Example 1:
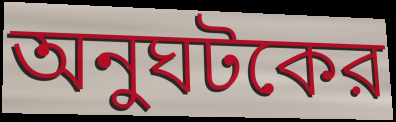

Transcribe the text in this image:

অনুঘটকের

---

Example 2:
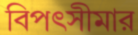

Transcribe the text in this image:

বিপৎসীমার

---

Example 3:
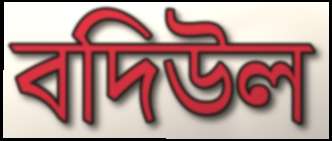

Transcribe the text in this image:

বদিউল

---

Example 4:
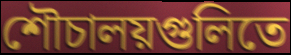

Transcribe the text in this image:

শৌচালয়গুলিতে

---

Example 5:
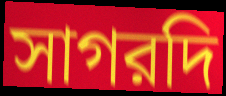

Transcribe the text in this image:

সাগরদি